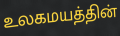
உலகமயத்தின்